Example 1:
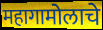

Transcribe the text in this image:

महागामोलाचे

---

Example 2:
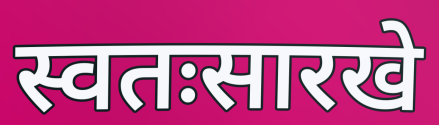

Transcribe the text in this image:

स्वतःसारखे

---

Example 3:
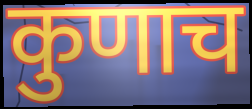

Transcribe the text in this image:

कुणाच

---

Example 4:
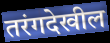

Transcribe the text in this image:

तरंगदेखील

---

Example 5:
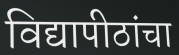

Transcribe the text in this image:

विद्यापीठांचा